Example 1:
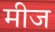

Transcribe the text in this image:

मीज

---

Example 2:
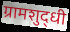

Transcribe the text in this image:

ग्रामशुद्धी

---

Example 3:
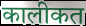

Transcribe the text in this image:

कालीकत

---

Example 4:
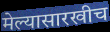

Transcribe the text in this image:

मेल्यासारखीच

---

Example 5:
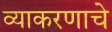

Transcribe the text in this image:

व्याकरणाचे